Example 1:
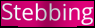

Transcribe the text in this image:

Stebbing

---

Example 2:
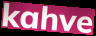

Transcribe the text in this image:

kahve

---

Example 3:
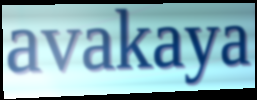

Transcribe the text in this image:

avakaya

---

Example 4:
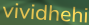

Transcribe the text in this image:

vividhehi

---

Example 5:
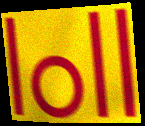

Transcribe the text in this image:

loll